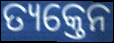
ତ୍ୟକ୍ତେନ